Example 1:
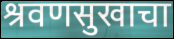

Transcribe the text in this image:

श्रवणसुखाचा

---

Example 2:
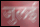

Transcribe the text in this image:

जुलई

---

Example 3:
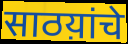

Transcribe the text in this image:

साठय़ांचे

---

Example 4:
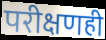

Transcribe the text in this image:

परीक्षणही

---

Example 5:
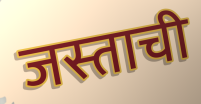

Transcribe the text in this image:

जस्ताची